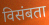
विसंबता